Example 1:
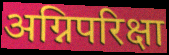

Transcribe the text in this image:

अग्निपरिक्षा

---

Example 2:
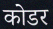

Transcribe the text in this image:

कोडर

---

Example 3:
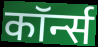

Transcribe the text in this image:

कॉर्न्स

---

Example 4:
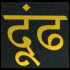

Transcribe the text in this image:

दूंढ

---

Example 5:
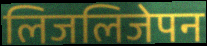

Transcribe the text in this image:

लिजलिजेपन